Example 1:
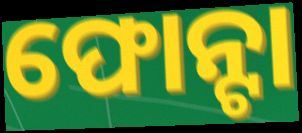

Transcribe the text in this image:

ଫୋନ୍ଟା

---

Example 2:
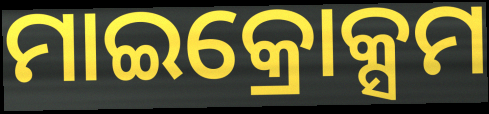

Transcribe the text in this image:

ମାଇକ୍ରୋକ୍ସମ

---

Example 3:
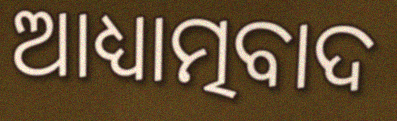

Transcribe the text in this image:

ଆଧ୍ୟାତ୍ମବାଦ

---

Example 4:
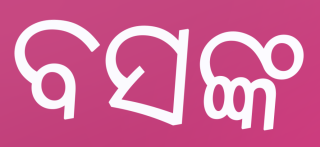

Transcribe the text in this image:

ବସଙ୍କ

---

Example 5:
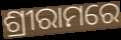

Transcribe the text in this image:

ଶ୍ରୀରାମରେ